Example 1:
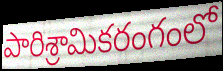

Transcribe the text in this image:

పారిశ్రామికరంగంలో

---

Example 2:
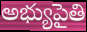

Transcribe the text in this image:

అభ్యుపైతి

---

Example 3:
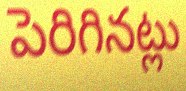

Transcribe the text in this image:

పెరిగినట్లు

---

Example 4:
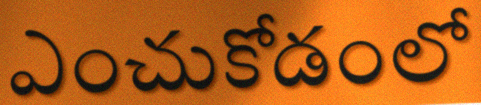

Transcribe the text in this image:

ఎంచుకోడంలో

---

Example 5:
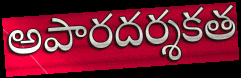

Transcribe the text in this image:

అపారదర్శకత